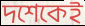
দশেকেই